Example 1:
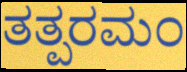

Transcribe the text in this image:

ತತ್ಪರಮಂ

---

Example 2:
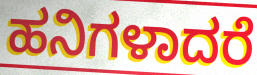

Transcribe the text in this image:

ಹನಿಗಳಾದರೆ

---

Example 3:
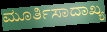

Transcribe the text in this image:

ಮೂರ್ತಿಸಾದಾಖ್ಯ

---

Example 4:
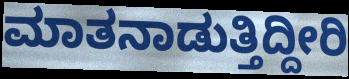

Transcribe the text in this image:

ಮಾತನಾಡುತ್ತಿದ್ದೀರಿ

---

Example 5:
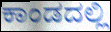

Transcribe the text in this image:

ಕಾಂಡದಲ್ಲಿ